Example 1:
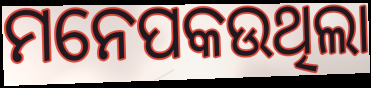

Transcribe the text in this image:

ମନେପକଉଥିଲା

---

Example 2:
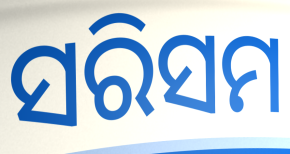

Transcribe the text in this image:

ସରିସମ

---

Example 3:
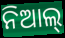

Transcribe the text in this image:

ନିଆଲ୍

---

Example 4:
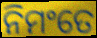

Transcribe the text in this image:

ନିମଂତେ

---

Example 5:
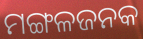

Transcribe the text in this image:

ମଙ୍ଗଳଜନକ